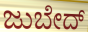
ಜುಬೇದ್